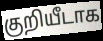
குறியீடாக